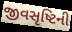
જીવસૃષ્ટિની